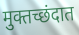
मुक्तच्छंदात